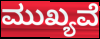
ಮುಖ್ಯವೆ